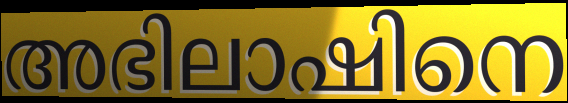
അഭിലാഷിനെ